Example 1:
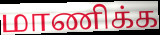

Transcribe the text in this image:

மாணிக்க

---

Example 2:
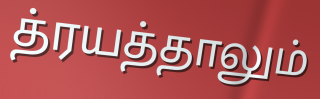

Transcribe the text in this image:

த்ரயத்தாலும்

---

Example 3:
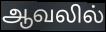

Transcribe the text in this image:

ஆவலில்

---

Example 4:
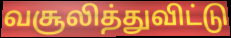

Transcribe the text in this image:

வசூலித்துவிட்டு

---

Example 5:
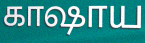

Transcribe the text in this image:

காஷாய